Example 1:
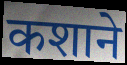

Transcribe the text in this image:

कशाने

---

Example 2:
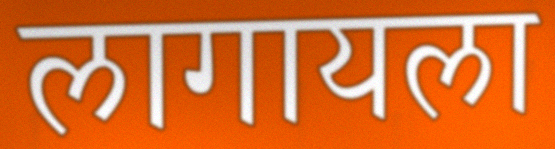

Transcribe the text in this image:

लागायला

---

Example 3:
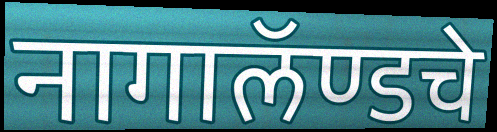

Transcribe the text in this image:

नागालॅण्डचे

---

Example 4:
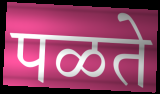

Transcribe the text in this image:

पळते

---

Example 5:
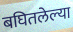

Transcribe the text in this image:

बघितलेल्या